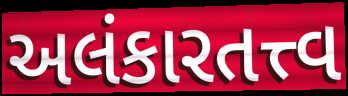
અલંકારતત્ત્વ